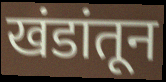
खंडांतून